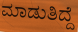
ಮಾಡುತಿದ್ದೆ